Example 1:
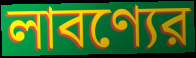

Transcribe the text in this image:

লাবণ্যের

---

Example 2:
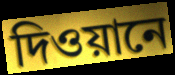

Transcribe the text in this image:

দিওয়ানে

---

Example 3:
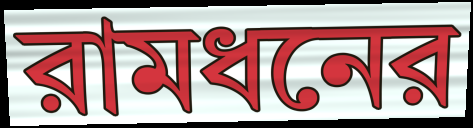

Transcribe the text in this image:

রামধনের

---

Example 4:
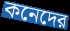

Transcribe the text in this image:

কনেদের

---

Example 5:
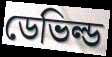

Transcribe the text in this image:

ডেভিল্ড